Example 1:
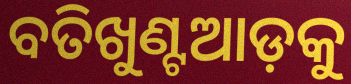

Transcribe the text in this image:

ବତିଖୁଣ୍ଟଆଡ଼କୁ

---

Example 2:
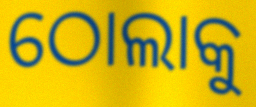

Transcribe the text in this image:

ଠୋଲାକୁ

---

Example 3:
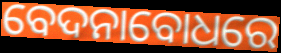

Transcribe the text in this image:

ବେଦନାବୋଧରେ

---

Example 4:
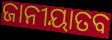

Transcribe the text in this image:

ଜାନୀୟାତବ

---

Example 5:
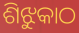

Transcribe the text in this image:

ଶିଝୁକାଠ